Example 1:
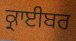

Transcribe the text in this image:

ਕ੍ਰਾਈਬਰ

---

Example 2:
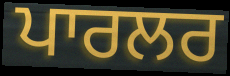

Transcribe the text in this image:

ਪਾਰਲਰ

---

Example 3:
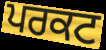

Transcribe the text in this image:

ਪਰਕਟ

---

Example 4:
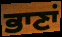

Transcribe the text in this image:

ਭਾਣਾਂ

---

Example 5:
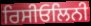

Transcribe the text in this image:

ਰਿਸੀਓਲਿਨੀ